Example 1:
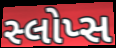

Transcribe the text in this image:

સ્લોપ્સ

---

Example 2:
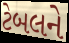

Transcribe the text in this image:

ટેબલને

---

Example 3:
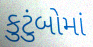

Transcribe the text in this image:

કુટુંબોમાં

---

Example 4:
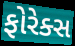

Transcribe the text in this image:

ફોરેક્સ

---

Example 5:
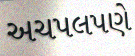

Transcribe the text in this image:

અચપલપણે